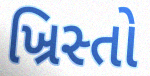
ખ્રિસ્તો